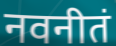
नवनीतं